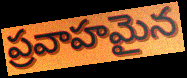
ప్రవాహమైన